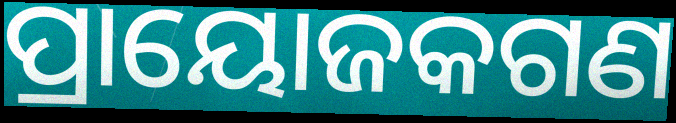
ପ୍ରାୟୋଜକଗଣ